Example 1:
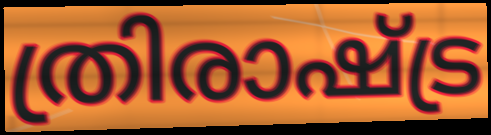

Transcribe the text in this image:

ത്രിരാഷ്ട്ര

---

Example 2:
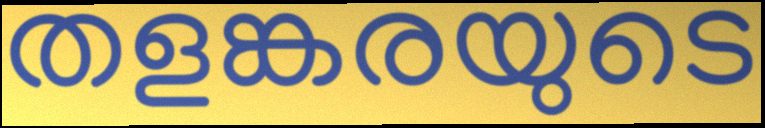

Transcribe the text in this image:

തളങ്കരയുടെ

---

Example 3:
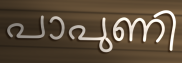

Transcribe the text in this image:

പാപുണി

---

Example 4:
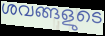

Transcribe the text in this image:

ശവങ്ങളുടെ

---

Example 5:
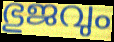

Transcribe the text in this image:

ഭുജവും